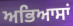
ਅਭਿਆਸਾਂ